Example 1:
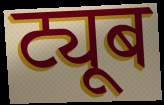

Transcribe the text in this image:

ट्यूब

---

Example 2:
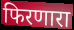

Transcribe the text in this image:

फिरणारा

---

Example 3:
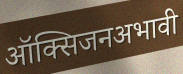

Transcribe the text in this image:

ऑक्सिजनअभावी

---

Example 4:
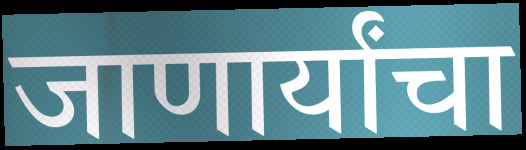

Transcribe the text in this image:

जाणार्यांचा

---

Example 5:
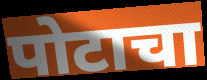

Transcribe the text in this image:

पोटाचा